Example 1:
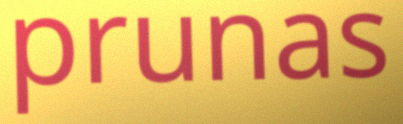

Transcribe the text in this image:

prunas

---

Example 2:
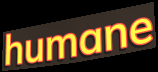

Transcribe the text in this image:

humane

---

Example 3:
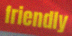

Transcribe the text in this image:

friendly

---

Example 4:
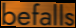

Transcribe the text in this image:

befalls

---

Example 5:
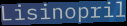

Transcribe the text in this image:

Lisinopril